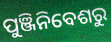
ପୁଞ୍ଜିନିବେଶରୁ